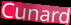
Cunard